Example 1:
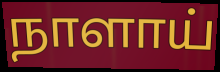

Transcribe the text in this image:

நாளாய்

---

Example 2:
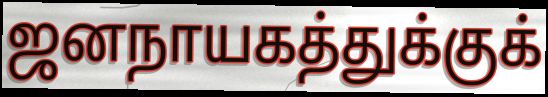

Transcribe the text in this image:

ஜனநாயகத்துக்குக்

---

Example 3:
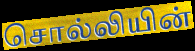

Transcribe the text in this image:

சொல்லியின்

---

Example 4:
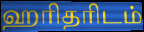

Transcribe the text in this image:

ஹரிதரிடம்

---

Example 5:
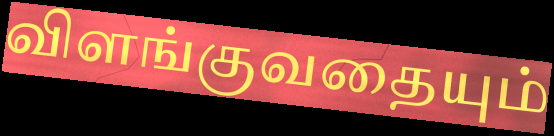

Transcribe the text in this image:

விளங்குவதையும்